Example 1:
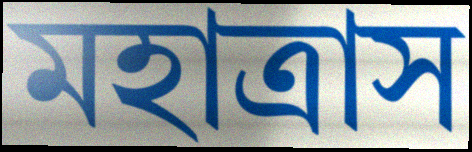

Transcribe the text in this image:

মহাত্রাস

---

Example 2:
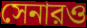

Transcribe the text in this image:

সেনারও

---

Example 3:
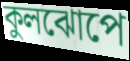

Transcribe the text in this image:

কুলঝোপে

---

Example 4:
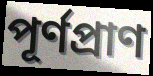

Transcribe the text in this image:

পূর্ণপ্রাণ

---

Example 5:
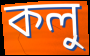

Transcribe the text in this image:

কলু